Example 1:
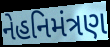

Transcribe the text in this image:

નેહનિમંત્રણ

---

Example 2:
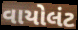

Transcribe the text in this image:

વાયોલંટ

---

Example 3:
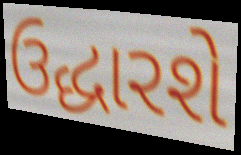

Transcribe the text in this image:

ઉદ્ધારશે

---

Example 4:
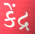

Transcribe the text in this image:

કેંદ્ર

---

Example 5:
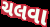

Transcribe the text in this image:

ચલવા